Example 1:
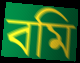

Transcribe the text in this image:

বমি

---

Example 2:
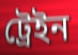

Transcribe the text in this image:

ট্ৰেইন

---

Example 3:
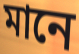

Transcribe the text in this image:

মানে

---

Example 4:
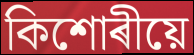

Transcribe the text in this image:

কিশোৰীয়ে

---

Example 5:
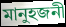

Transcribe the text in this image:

মানুহজনী